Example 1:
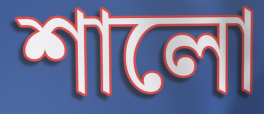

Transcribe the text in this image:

শালো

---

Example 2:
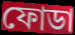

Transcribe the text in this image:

ফোডা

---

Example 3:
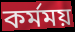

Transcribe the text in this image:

কর্মময়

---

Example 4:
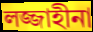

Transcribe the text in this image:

লজ্জাহীনা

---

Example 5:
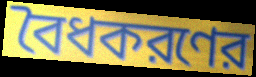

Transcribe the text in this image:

বৈধকরণের